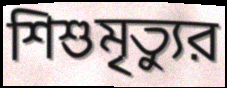
শিশুমৃত্যুর